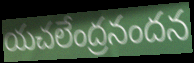
యచలేంద్రనందన